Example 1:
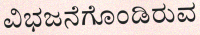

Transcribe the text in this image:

ವಿಭಜನೆಗೊಂಡಿರುವ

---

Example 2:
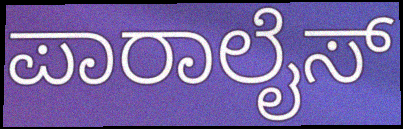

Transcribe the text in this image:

ಪಾರಾಲೈಸ್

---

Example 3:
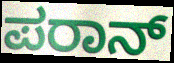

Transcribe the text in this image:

ಪರಾನ್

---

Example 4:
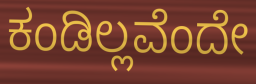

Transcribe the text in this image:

ಕಂಡಿಲ್ಲವೆಂದೇ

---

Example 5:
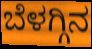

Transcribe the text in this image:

ಬೆಳಗ್ಗಿನ